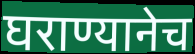
घराण्यानेच